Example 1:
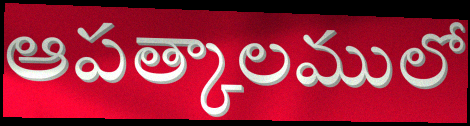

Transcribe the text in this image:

ఆపత్కాలములో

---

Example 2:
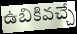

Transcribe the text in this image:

ఉబికివచ్చే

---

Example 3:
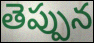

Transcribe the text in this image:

తెప్పున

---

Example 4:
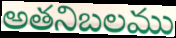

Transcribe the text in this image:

అతనిబలము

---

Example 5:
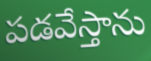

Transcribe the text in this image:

పడవేస్తాను